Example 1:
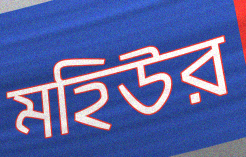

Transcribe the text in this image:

মহিউর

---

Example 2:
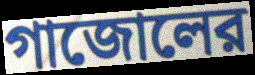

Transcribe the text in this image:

গাজোলের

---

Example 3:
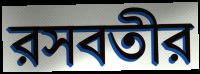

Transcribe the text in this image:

রসবতীর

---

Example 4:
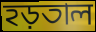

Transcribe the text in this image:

হড়তাল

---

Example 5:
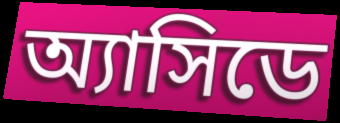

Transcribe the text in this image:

অ্যাসিডে